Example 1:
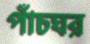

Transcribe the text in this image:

পাঁচঘর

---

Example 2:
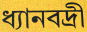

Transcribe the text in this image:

ধ্যানবদ্রী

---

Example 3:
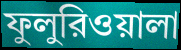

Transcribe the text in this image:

ফুলুরিওয়ালা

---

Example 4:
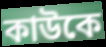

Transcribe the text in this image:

কাউকে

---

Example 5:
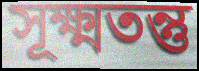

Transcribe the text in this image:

সূক্ষ্মতন্তু